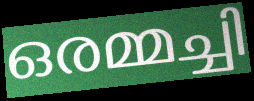
ഒരമ്മച്ചി